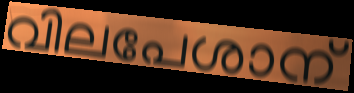
വിലപേശാന്